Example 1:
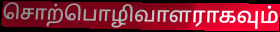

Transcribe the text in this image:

சொற்பொழிவாளராகவும்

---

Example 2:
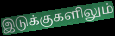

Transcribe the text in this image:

இடுக்குகளிலும்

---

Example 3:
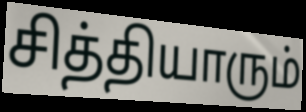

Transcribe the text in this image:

சித்தியாரும்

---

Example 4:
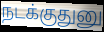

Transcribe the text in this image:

நடக்குதுனு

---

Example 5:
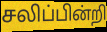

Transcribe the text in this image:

சலிப்பின்றி